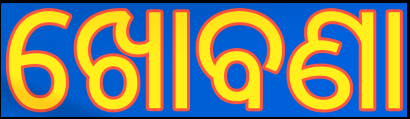
ଖୋବଣା